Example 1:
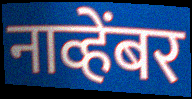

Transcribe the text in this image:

नाव्हेंबर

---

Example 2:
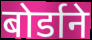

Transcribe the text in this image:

बोर्डाने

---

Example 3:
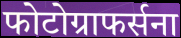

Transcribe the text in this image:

फोटोग्राफर्सना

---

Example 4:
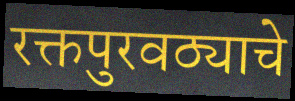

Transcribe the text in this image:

रक्तपुरवठ्याचे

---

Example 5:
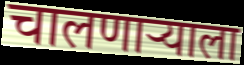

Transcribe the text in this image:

चालणाऱ्याला